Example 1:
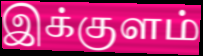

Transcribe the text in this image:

இக்குளம்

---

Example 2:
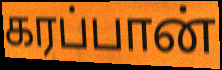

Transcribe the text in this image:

கரப்பான்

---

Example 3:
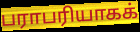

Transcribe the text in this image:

பராபரியாகக்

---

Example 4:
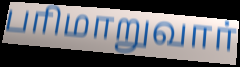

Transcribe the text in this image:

பரிமாறுவார்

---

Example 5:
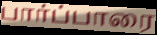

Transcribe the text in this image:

பார்ப்பாரை